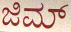
ಜಿಮ್